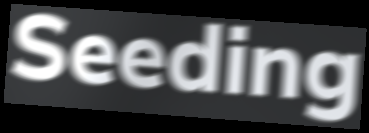
Seeding